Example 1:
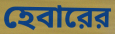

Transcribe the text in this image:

হেবারের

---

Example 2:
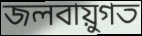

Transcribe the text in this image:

জলবায়ুগত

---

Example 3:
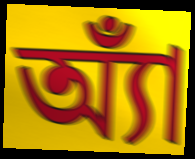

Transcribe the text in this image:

অ্যাঁ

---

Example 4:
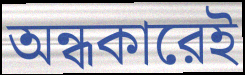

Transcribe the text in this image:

অন্ধকারেই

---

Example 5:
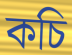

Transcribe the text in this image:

কচি